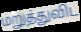
மறுத்துவிட